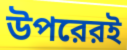
উপরেরই